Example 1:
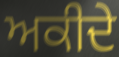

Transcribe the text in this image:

ਅਕੀਦੇ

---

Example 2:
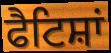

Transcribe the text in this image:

ਫੈਟਿਸ਼ਾਂ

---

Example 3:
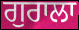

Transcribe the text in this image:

ਗੁਰਾਲਾ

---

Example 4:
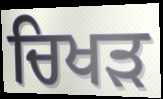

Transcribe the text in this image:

ਚਿਖੜ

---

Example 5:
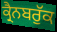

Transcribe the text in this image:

ਕ੍ਰੈਨਬਰੁੱਕ